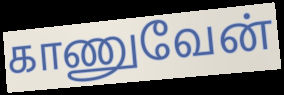
காணுவேன்